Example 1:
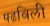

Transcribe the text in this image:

पढविली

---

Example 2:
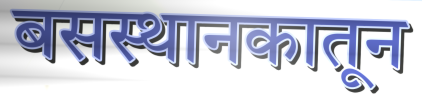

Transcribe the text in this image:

बसस्थानकातून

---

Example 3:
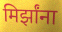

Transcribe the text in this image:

मिर्झांना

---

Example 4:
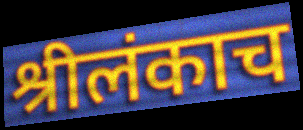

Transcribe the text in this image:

श्रीलंकाच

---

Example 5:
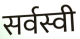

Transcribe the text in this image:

सर्वस्वी